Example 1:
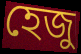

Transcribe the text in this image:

হেজু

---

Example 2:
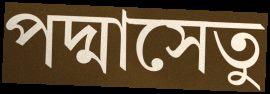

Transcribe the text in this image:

পদ্মাসেতু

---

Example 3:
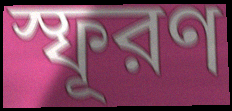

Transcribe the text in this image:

স্ফূরণ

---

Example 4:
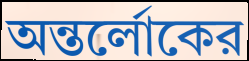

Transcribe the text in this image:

অন্তর্লোকের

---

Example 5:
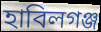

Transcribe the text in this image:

হাবিলগঞ্জ